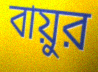
বায়ুর